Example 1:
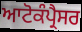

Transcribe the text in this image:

ਆਟੋਕੰਪ੍ਰੈਸਰ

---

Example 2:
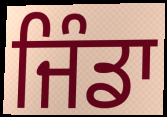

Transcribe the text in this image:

ਜਿੰਡਾ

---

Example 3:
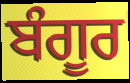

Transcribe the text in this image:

ਬੰਗੂਰ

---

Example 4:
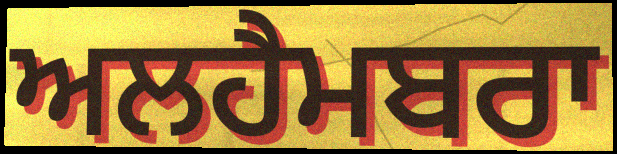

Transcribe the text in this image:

ਅਲਹੈਮਬਰਾ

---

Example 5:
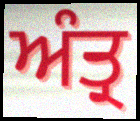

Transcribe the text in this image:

ਅੰਤ੍ਰ